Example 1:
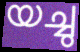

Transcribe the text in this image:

യച്ചു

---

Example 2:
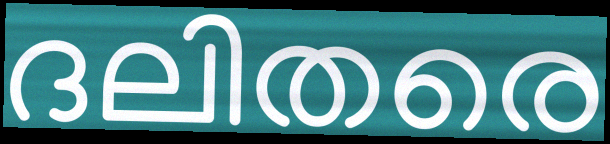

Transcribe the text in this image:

ദലിതരെ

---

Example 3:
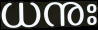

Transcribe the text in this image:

ധനുഃ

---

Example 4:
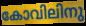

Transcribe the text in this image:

കോവിലിനു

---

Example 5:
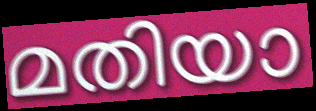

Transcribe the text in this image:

മതിയാ